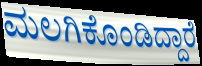
ಮಲಗಿಕೊಂಡಿದ್ದಾರೆ